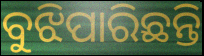
ବୁଝିପାରିଛନ୍ତି